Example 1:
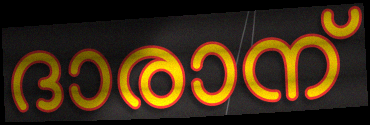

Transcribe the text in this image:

ദാരാന്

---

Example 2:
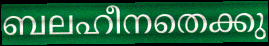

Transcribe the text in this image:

ബലഹീനതെക്കു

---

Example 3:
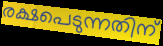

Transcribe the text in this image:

രക്ഷപെടുന്നതിന്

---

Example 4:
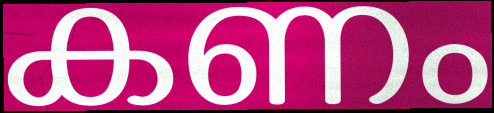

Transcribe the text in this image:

കണം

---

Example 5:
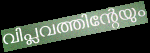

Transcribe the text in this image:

വിപ്ലവത്തിന്റേയും